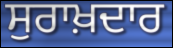
ਸੁਰਾਖ਼ਦਾਰ